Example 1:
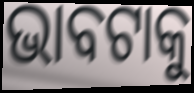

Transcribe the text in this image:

ଭାବଟାକୁ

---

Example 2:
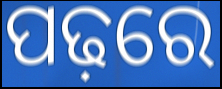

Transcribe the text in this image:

ପଢ଼ରେ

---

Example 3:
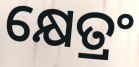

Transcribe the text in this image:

କ୍ଷେତ୍ରଂ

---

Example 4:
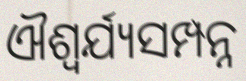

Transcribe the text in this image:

ଐଶ୍ୱର୍ଯ୍ୟସମ୍ପନ୍ନ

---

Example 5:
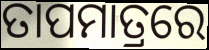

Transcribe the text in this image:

ତାପମାତ୍ରରେ